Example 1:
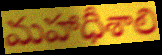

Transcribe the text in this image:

మహాధీశాలి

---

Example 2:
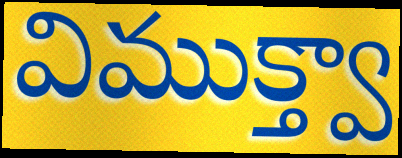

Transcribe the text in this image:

విముక్త్వా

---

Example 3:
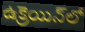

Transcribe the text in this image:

ఉక్రెయిన్‌లో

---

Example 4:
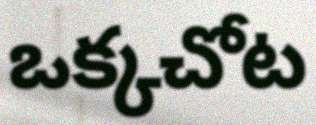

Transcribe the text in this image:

ఒక్కచోట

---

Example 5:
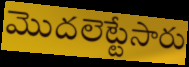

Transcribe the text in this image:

మొదలెట్టేసారు